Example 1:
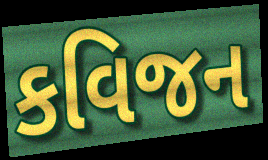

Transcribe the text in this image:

કવિજન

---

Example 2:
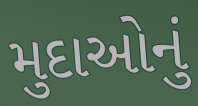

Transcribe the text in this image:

મુદાઓનું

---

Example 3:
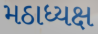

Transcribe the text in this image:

મઠાધ્યક્ષ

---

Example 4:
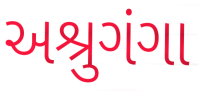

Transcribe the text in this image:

અશ્રુગંગા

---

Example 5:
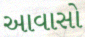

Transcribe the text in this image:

આવાસો